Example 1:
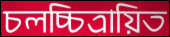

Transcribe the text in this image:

চলচ্চিত্রায়িত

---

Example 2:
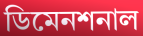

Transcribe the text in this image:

ডিমেনশনাল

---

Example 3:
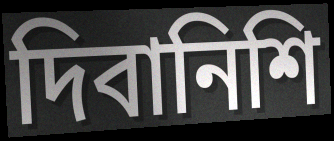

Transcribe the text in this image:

দিবানিশি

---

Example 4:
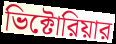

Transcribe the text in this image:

ভিক্টোরিয়ার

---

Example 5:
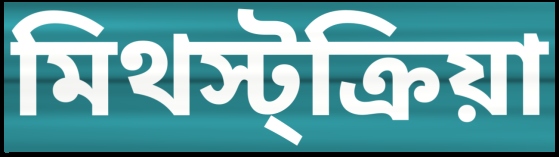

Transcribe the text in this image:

মিথস্ট্ক্রিয়া